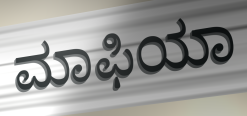
ಮಾಫಿಯಾ